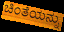
ಚಿಂತೆಯನ್ನು